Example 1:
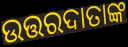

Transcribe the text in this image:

ଉତ୍ତରଦାତାଙ୍କ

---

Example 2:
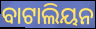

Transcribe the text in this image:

ବାଟାଲିୟନ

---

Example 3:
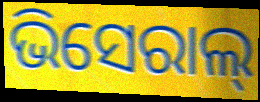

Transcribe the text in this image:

ଭିସେରାଲ୍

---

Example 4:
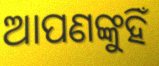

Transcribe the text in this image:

ଆପଣଙ୍କୁହିଁ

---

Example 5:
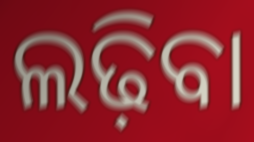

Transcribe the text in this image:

ଲଢ଼ିବା